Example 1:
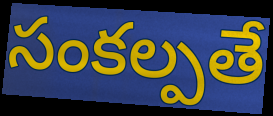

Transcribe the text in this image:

సంకల్పతే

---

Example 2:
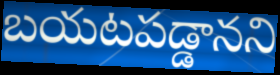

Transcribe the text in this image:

బయటపడ్డానని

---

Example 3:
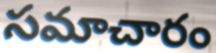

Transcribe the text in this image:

సమాచారం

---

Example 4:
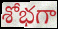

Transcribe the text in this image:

శోభగా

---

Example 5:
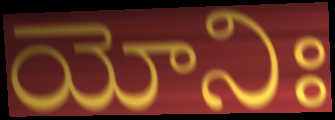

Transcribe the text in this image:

యోనిః